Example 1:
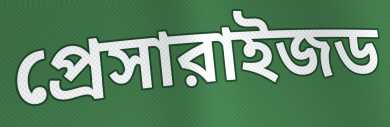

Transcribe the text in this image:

প্রেসারাইজড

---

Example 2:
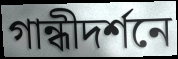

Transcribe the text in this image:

গান্ধীদর্শনে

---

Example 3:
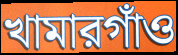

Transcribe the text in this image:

খামারগাঁও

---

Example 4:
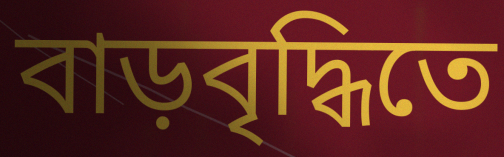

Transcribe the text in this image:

বাড়বৃদ্ধিতে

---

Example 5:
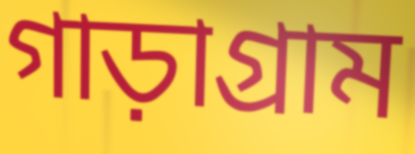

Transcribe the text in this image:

গাড়াগ্রাম